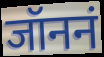
जॉननं